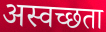
अस्वच्छता